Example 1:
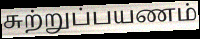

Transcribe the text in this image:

சுற்றுப்பயணம்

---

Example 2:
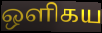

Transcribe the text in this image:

ஒளிகய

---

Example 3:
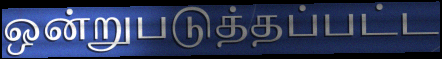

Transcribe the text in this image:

ஒன்றுபடுத்தப்பட்ட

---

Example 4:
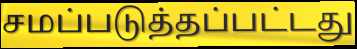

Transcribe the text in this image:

சமப்படுத்தப்பட்டது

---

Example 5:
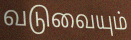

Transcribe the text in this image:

வடுவையும்